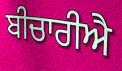
ਬੀਚਾਰੀਐ